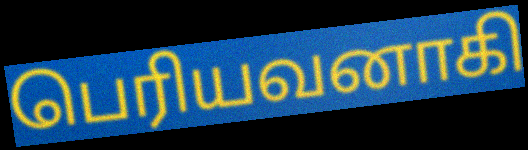
பெரியவனாகி